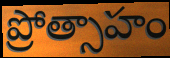
ప్రోత్సాహం